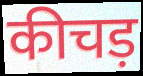
कीचड़